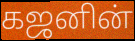
கஜனின்